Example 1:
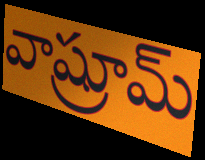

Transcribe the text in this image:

వాష్రూమ్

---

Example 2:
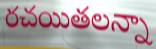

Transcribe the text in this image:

రచయితలన్నా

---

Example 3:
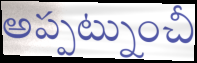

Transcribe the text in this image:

అప్పట్నుంచీ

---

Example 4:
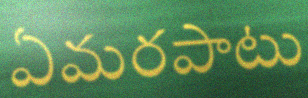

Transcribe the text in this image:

ఏమరపాటు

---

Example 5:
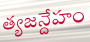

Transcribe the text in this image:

త్యజన్దేహం